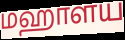
மஹாளய